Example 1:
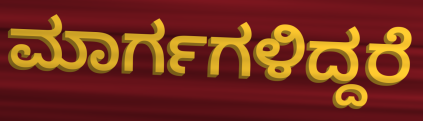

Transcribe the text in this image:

ಮಾರ್ಗಗಳಿದ್ದರೆ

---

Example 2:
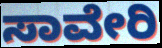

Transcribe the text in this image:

ಸಾವೇರಿ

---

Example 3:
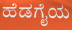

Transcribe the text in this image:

ಹೆಡಗೈಯ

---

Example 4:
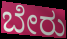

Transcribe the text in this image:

ಬೇರು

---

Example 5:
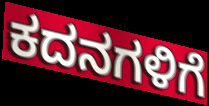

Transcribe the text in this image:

ಕದನಗಳಿಗೆ